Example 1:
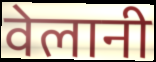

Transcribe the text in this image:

वेलानी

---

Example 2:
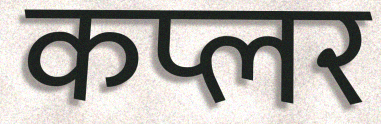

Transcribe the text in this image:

कप्लर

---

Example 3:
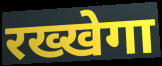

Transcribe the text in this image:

रख्खेगा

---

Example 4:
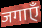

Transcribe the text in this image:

जगाएँ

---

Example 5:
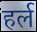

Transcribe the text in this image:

हर्ल